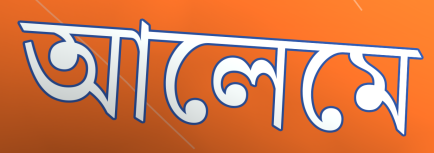
আলেমে